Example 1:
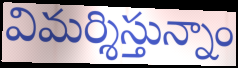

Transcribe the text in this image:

విమర్శిస్తున్నాం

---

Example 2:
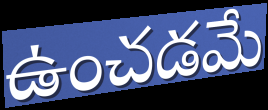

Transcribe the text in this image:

ఉంచడమే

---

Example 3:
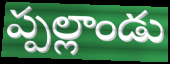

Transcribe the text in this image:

ప్పల్లాండు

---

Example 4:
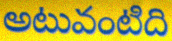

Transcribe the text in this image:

అటువంటిది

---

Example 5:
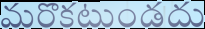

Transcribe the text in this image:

మరొకటుండదు